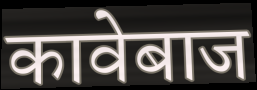
कावेबाज